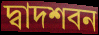
দ্বাদশবন